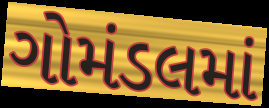
ગોમંડલમાં